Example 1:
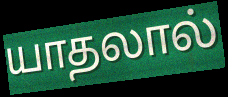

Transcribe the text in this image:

யாதலால்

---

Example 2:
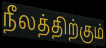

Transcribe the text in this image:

நீலத்திற்கும்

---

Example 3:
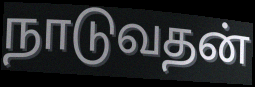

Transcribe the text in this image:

நாடுவதன்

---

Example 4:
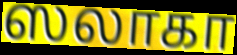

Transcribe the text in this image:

ஸலாகா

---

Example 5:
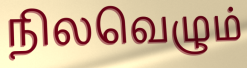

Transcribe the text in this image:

நிலவெழும்